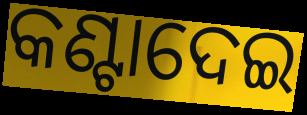
କଣ୍ଟାଦେଇ